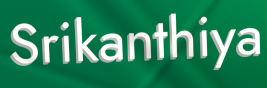
Srikanthiya